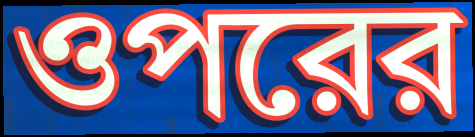
ওপরের